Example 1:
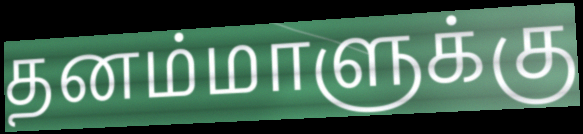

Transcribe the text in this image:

தனம்மாளுக்கு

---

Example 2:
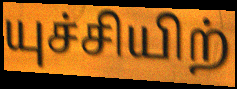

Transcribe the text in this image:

யுச்சியிற்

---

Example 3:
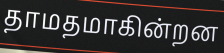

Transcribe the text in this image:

தாமதமாகின்றன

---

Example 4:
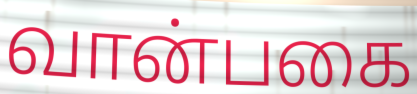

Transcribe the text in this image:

வான்பகை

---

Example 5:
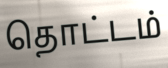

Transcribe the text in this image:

தொட்டம்